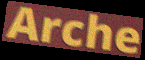
Arche